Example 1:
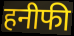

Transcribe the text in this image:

हनीफी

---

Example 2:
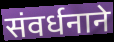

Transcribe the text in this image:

संवर्धनाने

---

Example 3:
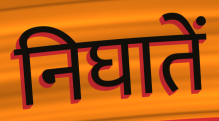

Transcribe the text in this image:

निघातें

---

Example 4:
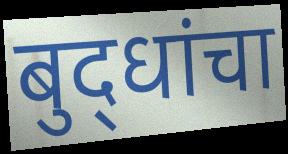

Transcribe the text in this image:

बुद्धांचा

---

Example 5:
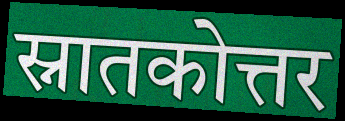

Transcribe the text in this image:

स्नातकोत्तर